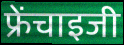
फ्रेंचाइजी